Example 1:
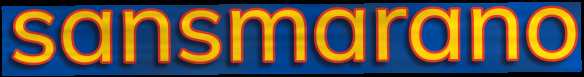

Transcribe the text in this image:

sansmarano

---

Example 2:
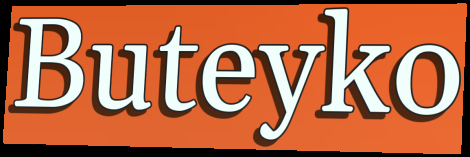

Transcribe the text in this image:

Buteyko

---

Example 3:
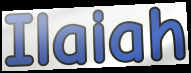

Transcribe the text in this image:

Ilaiah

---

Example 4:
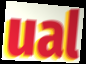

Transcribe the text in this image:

ual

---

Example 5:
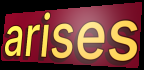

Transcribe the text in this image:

arises